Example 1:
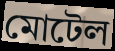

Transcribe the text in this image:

মোটেল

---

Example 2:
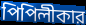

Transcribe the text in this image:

পিপিলীকার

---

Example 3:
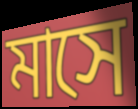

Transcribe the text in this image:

মাসে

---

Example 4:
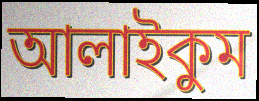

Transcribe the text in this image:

আলাইকুম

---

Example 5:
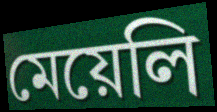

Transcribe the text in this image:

মেয়েলি